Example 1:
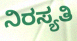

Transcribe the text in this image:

ನಿರಸ್ಯತಿ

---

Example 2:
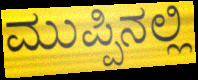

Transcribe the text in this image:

ಮುಪ್ಪಿನಲ್ಲಿ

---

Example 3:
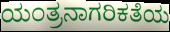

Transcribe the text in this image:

ಯಂತ್ರನಾಗರಿಕತೆಯ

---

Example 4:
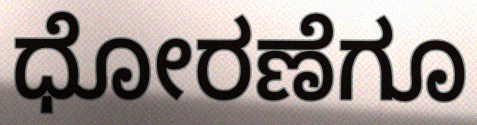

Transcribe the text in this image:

ಧೋರಣೆಗೂ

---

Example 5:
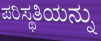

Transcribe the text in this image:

ಪರಿಸ್ಥತಿಯನ್ನು